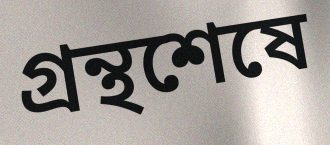
গ্রন্থশেষে